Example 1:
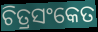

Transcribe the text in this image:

ଚିତ୍ରସଂକେତ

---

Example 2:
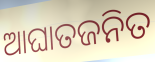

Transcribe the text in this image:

ଆଘାତଜନିତ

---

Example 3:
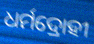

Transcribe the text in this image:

ଧର୍ମଦ୍ରୋହୀ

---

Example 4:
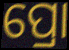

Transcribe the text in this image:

ପ୍ରୋ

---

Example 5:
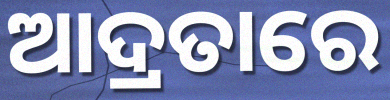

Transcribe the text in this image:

ଆଦ୍ରତାରେ